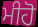
ਮੀਹੋ